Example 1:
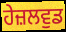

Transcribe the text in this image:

ਹੇਜ਼ਲਵੁਡ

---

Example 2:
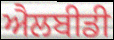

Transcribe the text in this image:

ਐਲਬੀਡੀ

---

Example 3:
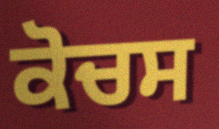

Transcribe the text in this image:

ਕੋਚਸ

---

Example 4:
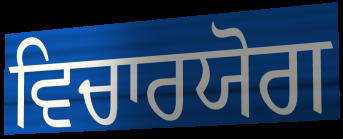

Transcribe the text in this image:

ਵਿਚਾਰਯੋਗ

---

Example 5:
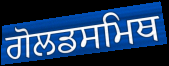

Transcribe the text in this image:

ਗੋਲਡਸਮਿਥ